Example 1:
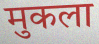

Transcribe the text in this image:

मुकला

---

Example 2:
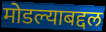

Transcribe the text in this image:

मोडल्याबद्दल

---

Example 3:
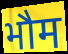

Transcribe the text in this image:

भौम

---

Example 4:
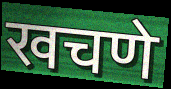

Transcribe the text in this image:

खचणे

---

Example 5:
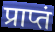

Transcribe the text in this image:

प्राप्तं